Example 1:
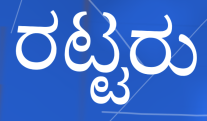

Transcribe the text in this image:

ರಟ್ಟರು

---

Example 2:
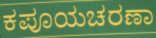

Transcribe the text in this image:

ಕಪೂಯಚರಣಾ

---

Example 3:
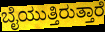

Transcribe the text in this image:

ಬೈಯುತ್ತಿರುತ್ತಾರೆ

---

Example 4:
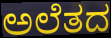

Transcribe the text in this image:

ಅಲೆತದ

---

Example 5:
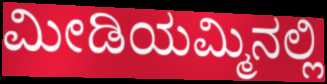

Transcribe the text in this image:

ಮೀಡಿಯಮ್ಮಿನಲ್ಲಿ